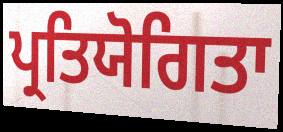
ਪ੍ਰਤਿਯੋਗਿਤਾ